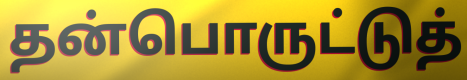
தன்பொருட்டுத்